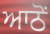
ਆਠੋਂ